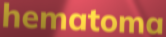
hematoma